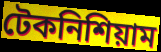
টেকনিশিয়াম